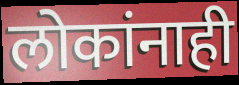
लोकांनाही